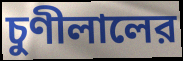
চুণীলালের